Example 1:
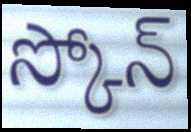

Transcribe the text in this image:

స్కోన్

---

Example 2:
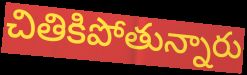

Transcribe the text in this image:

చితికిపోతున్నారు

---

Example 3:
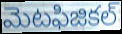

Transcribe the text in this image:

మెటఫిజికల్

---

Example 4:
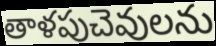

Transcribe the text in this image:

తాళపుచెవులను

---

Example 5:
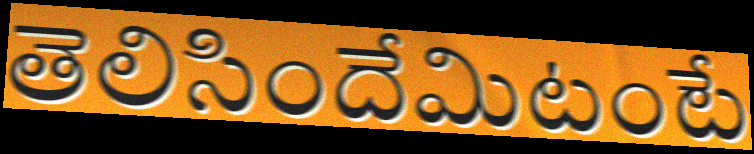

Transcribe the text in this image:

తెలిసిందేమిటంటే